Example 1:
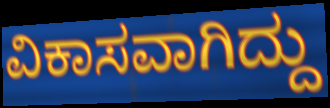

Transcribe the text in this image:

ವಿಕಾಸವಾಗಿದ್ದು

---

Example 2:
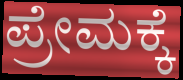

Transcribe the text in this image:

ಪ್ರೇಮಕ್ಕೆ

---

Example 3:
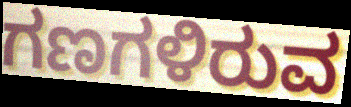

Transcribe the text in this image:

ಗಣಗಳಿರುವ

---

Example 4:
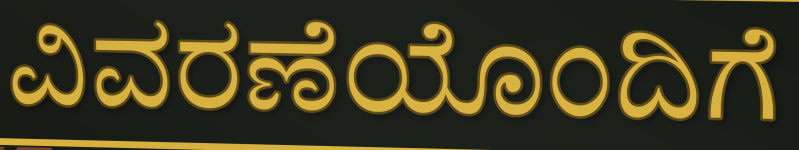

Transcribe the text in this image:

ವಿವರಣೆಯೊಂದಿಗೆ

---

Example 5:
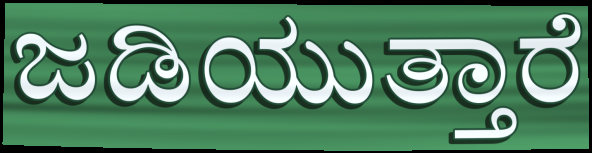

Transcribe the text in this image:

ಜಡಿಯುತ್ತಾರೆ